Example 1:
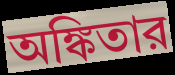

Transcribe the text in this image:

অঙ্কিতার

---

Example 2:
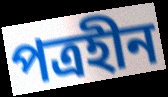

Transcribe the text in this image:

পত্রহীন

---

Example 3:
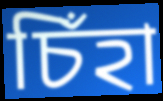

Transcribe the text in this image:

চিঁহা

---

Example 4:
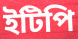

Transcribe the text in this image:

ইটিপি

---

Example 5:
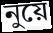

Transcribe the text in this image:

নুয়ে